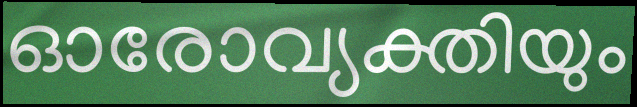
ഓരോവ്യക്തിയും